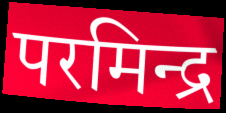
परमिन्द्र